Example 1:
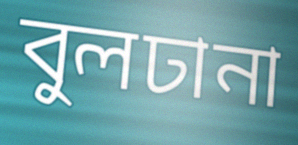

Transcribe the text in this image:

বুলঢানা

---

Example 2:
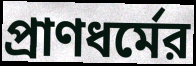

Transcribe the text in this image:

প্রাণধর্মের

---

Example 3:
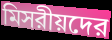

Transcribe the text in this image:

মিসরীয়দের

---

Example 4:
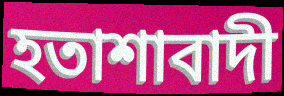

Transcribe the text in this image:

হতাশাবাদী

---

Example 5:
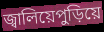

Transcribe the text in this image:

জ্বালিয়েপুড়িয়ে